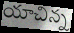
యాచిన్న